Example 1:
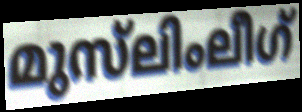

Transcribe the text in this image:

മുസ്‌ലിംലീഗ്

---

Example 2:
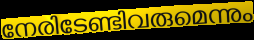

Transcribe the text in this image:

നേരിടേണ്ടിവരുമെന്നും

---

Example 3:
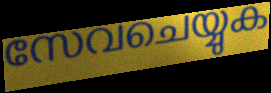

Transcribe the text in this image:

സേവചെയ്യുക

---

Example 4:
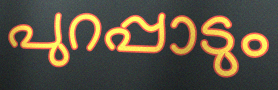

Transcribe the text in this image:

പുറപ്പാടും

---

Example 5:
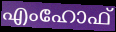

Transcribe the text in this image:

എംഹോഫ്